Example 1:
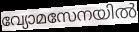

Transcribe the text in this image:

വ്യോമസേനയിൽ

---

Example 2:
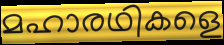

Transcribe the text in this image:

മഹാരഥികളെ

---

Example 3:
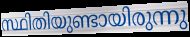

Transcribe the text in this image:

സ്ഥിതിയുണ്ടായിരുന്നു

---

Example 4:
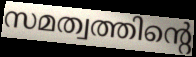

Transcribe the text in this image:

സമത്വത്തിന്റെ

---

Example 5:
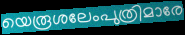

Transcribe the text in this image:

യെരൂശലേംപുത്രിമാരേ